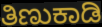
ತಿಣುಕಾಡಿ